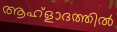
ആഹ്ളാദത്തിൽ